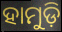
ହାମୁଡ଼ି